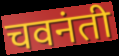
चवनंती